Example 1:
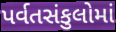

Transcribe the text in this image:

પર્વતસંકુલોમાં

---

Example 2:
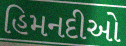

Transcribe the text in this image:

હિમનદીઓ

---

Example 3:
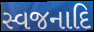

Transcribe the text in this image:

સ્વજનાદિ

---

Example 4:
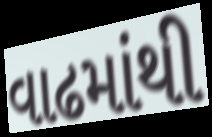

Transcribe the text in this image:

વાઢમાંથી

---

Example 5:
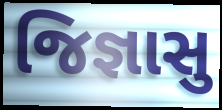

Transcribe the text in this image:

જિજ્ઞાસુ